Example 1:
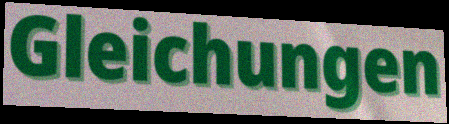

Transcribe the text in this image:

Gleichungen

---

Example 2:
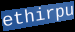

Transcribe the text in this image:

ethirpu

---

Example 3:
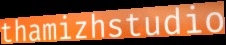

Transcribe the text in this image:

thamizhstudio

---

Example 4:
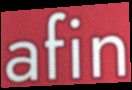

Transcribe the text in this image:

afin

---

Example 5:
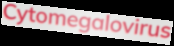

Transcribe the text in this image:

Cytomegalovirus